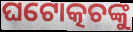
ଘଟୋତ୍କଚଙ୍କୁ